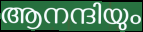
ആനന്ദിയും